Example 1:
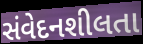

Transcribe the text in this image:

સંવેદનશીલતા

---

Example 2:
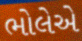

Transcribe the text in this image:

ભોલેએ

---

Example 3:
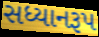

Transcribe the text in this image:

સધ્યાનરૂપ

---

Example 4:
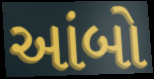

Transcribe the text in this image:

આંબો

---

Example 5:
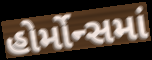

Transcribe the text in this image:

હોર્મોન્સમાં